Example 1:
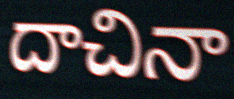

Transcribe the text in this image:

దాచినా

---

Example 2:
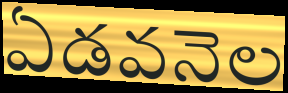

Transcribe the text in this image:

ఏడవనెల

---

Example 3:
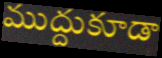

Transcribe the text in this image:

ముద్దుకూడా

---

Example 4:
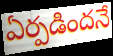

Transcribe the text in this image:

ఏర్పడిందనే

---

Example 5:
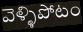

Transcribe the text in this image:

వెళ్ళిపోటం